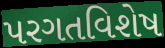
પરગતવિશેષ